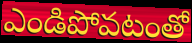
ఎండిపోవటంతో